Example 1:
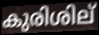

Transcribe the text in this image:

കുരിശില്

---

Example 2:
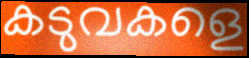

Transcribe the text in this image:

കടുവകളെ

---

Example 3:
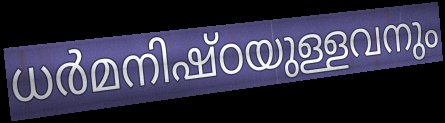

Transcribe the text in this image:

ധർമനിഷ്ഠയുള്ളവനും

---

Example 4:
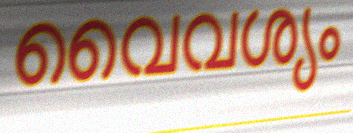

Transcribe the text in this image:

വൈവശ്യം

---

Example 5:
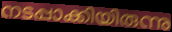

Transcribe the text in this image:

നടപ്പാക്കിയിരുന്നു